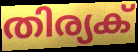
തിര്യക്